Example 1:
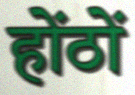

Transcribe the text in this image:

होंठों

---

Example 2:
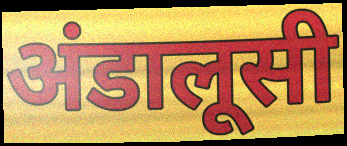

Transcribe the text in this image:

अंडालूसी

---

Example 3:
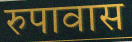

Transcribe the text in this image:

रुपावास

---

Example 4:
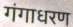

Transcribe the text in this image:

गंगाधरण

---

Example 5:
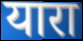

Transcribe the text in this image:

यारा